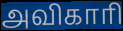
அவிகாரி